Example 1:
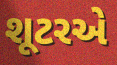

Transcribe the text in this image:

શૂટરએ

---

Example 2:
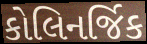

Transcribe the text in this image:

કોલિનર્જિક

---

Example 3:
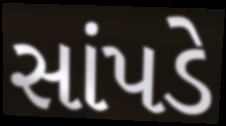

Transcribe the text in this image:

સાંપડે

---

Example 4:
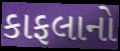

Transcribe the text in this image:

કાફલાનો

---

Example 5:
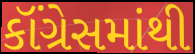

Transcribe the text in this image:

કૉંગ્રેસમાંથી